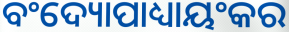
ବଂଦ୍ୟୋପାଧ୍ୟାୟଂକର